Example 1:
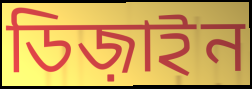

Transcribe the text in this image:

ডিজ়াইন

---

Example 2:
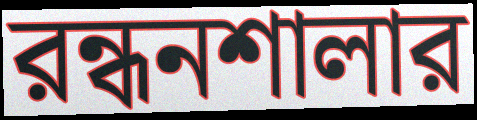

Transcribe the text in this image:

রন্ধনশালার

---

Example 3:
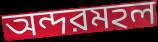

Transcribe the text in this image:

অন্দরমহল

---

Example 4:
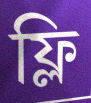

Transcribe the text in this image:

ফ্লি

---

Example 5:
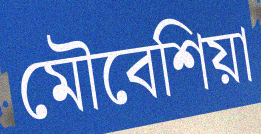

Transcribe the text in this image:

মৌবেশিয়া